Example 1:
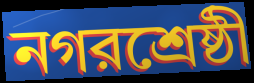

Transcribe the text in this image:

নগরশ্রেষ্ঠী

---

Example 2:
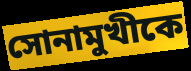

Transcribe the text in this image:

সোনামুখীকে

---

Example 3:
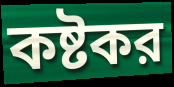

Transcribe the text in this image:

কষ্টকর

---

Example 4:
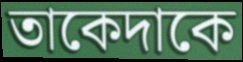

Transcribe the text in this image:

তাকেদাকে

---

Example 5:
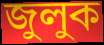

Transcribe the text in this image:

জুলুক